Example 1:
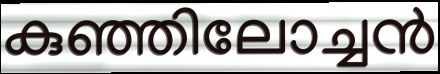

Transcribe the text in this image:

കുഞ്ഞിലോച്ചൻ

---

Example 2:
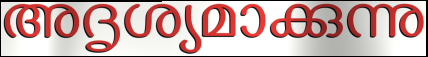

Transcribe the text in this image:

അദൃശ്യമാക്കുന്നു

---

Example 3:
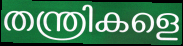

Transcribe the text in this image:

തന്ത്രികളെ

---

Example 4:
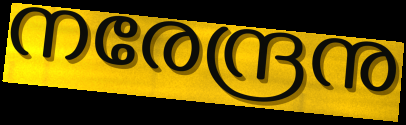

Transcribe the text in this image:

നരേന്ദ്രനു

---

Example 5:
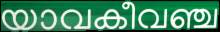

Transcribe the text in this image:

യാവകീവഞ്ച